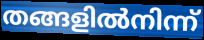
തങ്ങളിൽനിന്ന്